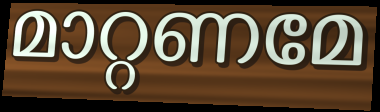
മാറ്റണമേ